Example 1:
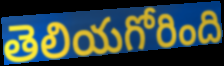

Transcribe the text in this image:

తెలియగోరింది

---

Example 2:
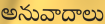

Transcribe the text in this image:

అనువాదాలు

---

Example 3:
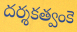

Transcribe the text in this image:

దర్శకత్వంకె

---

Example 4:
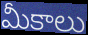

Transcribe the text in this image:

మీకాలు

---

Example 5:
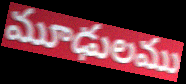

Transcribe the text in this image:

మూఢులము